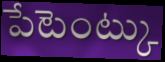
పేటెంట్కు